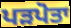
ਪੜਪੋਤਾ